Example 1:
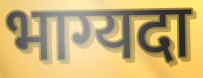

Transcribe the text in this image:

भाग्यदा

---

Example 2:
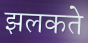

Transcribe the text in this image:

झलकते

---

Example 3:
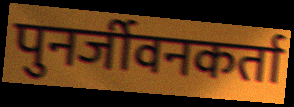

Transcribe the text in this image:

पुनर्जीवनकर्ता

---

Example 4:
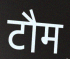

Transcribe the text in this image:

टौम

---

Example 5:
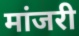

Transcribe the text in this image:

मांजरी